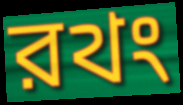
রথং